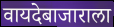
वायदेबाजाराला